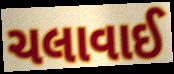
ચલાવાઈ